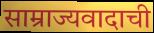
साम्राज्यवादाची